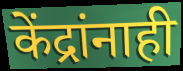
केंद्रांनाही